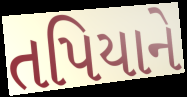
તપિયાને